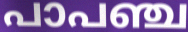
പാപഞ്ച